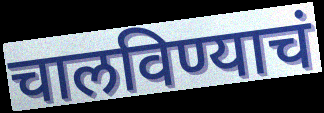
चालविण्याचं